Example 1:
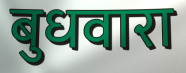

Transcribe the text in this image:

बुधवारा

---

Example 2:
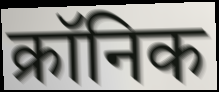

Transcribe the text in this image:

क्रॉनिक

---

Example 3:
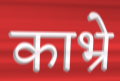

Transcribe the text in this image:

काभ्रे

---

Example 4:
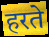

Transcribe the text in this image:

हरते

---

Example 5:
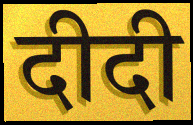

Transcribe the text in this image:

दीदी